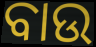
ବାଉ